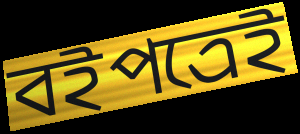
বইপত্রেই